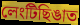
লেংটিছিঙাত